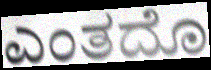
ಎಂತದೊ